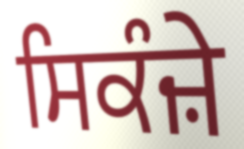
ਸਿਕੰਜ਼ੇ